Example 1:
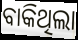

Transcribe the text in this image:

ବାକିଥିଲା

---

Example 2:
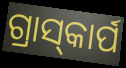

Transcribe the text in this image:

ଗ୍ରାସ୍‌କାର୍ପ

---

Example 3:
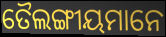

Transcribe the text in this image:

ତୈଲଙ୍ଗୀୟମାନେ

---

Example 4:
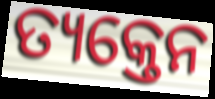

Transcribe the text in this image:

ତ୍ୟକ୍ତେନ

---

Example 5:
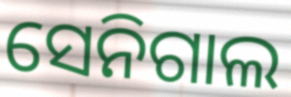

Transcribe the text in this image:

ସେନିଗାଲ